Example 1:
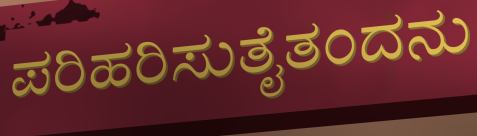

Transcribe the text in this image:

ಪರಿಹರಿಸುತೈತಂದನು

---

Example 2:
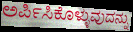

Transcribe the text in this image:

ಅರ್ಪಿಸಿಕೊಳ್ಳುವುದನ್ನು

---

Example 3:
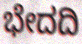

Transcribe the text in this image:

ಭೇದದಿ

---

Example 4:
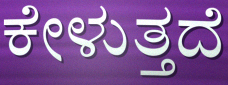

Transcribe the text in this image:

ಕೇಳುತ್ತದೆ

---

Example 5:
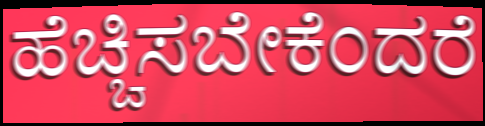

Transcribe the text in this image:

ಹೆಚ್ಚಿಸಬೇಕೆಂದರೆ